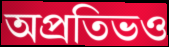
অপ্রতিভও